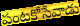
పంటకోసేవాడు